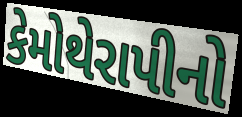
કેમોથેરાપીનો